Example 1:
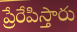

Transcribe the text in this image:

ప్రేరేపిస్తారు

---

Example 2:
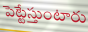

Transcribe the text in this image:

పెట్టేస్తుంటారు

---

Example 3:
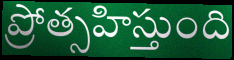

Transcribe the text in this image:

ప్రోత్సహిస్తుంది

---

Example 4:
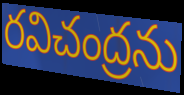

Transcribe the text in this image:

రవిచంద్రను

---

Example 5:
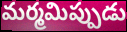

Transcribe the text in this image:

మర్మమిప్పుడు